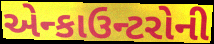
એન્કાઉન્ટરોની